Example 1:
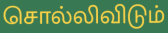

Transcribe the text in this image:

சொல்லிவிடும்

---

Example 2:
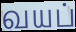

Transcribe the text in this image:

வயப்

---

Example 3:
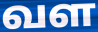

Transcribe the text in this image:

வள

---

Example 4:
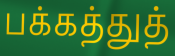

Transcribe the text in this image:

பக்கத்துத்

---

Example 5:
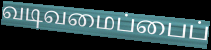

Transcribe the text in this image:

வடிவமைப்பைப்